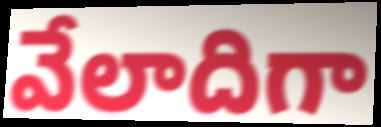
వేలాదిగా